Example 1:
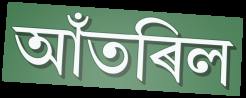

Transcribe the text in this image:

আঁতৰিল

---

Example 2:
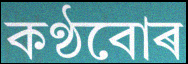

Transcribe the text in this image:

কণ্ঠবোৰ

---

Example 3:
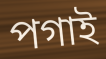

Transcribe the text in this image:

পগাই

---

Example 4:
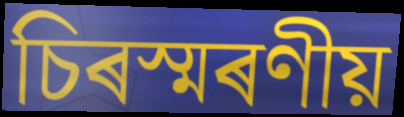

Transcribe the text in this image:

চিৰস্মৰণীয়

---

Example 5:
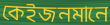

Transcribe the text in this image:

কেইজনমানে